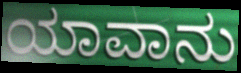
ಯಾವಾನು